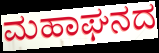
ಮಹಾಘನದ